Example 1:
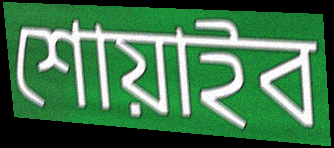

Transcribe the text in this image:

শোয়াইব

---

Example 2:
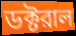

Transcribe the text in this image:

ডক্টরাল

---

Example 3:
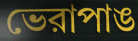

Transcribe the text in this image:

ভেরাপাঙ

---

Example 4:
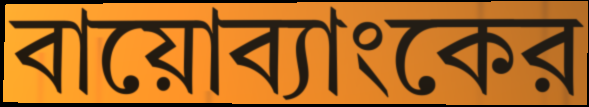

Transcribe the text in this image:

বায়োব্যাংকের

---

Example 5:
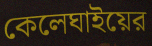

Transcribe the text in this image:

কেলেঘাইয়ের